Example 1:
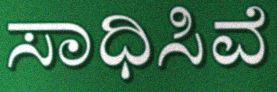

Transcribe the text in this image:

ಸಾಧಿಸಿವೆ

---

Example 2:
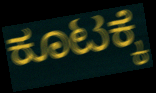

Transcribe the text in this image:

ಕೂಟಕ್ಕೆ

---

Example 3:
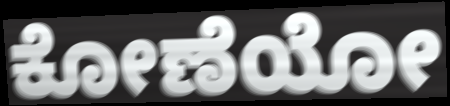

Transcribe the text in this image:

ಕೋಣೆಯೋ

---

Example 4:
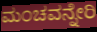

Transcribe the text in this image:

ಮಂಚವನ್ನೇರಿ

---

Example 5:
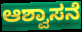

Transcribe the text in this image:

ಆಶ್ವಾಸನೆ